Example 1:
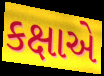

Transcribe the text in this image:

કક્ષાએ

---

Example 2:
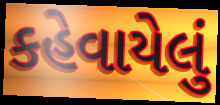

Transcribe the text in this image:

કહેવાયેલું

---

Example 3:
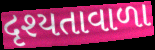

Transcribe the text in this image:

દૃશ્યતાવાળા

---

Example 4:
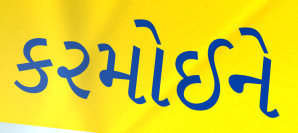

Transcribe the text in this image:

કરમોઈને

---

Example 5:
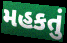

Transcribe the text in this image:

મહકતું